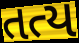
તત્ય